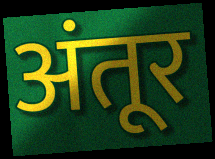
अंतूर